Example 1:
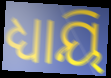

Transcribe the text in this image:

ଧ୍ୟାୟି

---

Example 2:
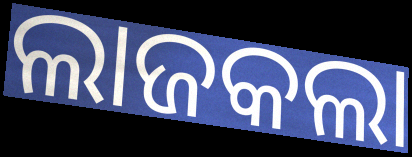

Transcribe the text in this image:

ଲାଜକଲା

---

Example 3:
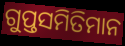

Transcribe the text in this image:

ଗୁପ୍ତସମିତିମାନ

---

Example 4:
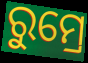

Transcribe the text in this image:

ରୁମ୍ରେ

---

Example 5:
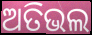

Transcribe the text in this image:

ଅତିଭଲ